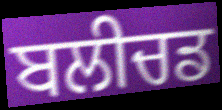
ਬਲੀਚਡ